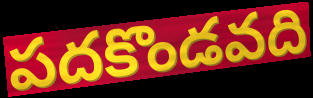
పదకొండవది